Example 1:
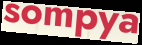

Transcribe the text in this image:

sompya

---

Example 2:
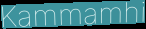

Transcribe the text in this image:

Kammamhi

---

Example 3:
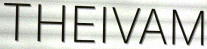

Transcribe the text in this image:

THEIVAM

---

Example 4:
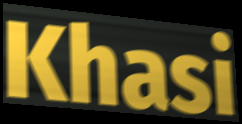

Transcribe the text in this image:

Khasi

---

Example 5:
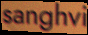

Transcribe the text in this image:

sanghvi